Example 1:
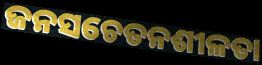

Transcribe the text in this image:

ଜନସଚେତନଶୀଳତା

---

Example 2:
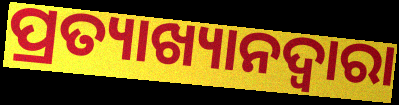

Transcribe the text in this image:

ପ୍ରତ୍ୟାଖ୍ୟାନଦ୍ଵାରା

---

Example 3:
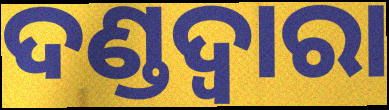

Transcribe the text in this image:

ଦଣ୍ଡଦ୍ୱାରା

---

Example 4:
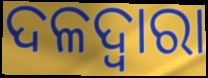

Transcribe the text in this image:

ଦଳଦ୍ୱାରା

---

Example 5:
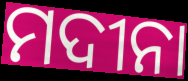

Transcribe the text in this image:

ମଦୀନା